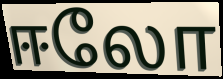
ஈலோ